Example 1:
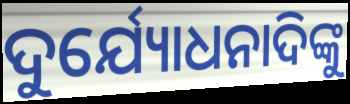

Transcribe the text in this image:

ଦୁର୍ଯ୍ୟୋଧନାଦିଙ୍କୁ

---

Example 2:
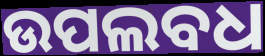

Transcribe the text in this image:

ଉପଲବଧ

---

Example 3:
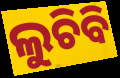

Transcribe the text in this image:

ଲୁଚିବି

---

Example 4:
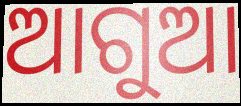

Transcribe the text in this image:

ଆଗୁଆ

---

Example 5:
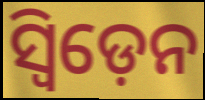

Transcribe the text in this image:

ସ୍ବିଡ଼େନ